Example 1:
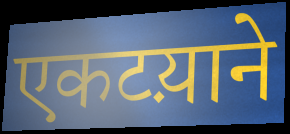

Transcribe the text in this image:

एकटय़ाने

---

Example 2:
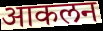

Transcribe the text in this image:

आकलन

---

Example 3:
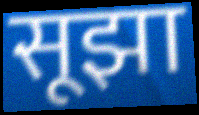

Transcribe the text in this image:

सूझा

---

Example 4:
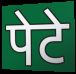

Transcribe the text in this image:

पेटे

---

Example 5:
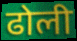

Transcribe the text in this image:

ढोली